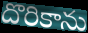
దొరికాను